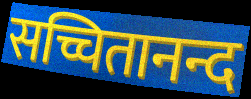
सच्चितानन्द